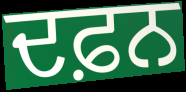
ਦਫ਼ਨ